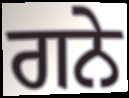
ਗਨੇ